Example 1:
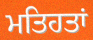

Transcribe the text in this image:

ਮਤਿਹਤਾਂ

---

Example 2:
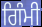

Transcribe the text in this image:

ਗਿੰਮੀ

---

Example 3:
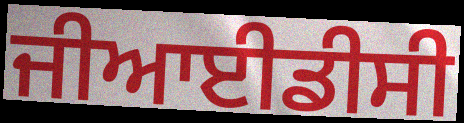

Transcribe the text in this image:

ਜੀਆਈਡੀਸੀ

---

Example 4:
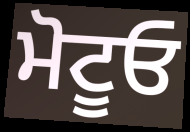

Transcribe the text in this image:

ਮੋਟੂਓ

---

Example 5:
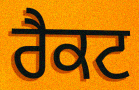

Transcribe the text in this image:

ਰੈਕਟ